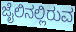
ಜೈಲಿನಲ್ಲಿರುವ